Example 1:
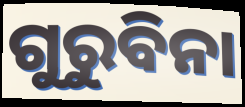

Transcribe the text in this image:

ଗୁରୁବିନା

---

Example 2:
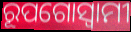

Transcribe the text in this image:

ରୂପଗୋସ୍ୱାମୀ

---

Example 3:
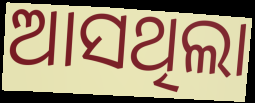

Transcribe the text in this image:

ଆସଥିଲା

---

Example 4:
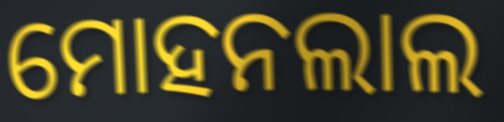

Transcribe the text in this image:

ମୋହନଲାଲ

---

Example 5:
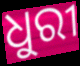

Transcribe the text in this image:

ଧୁରୀ